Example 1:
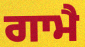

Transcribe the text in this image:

ਗਾਮੈ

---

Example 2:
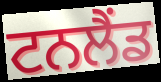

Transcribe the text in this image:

ਟਨਲੈਂਡ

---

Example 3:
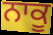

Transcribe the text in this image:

ਨਾਕੂ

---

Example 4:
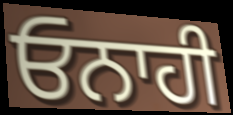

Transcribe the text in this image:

ਓਨਾਹੀ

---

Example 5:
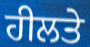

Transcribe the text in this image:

ਹੀਲਤੇ